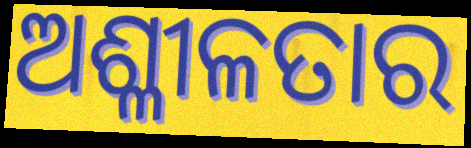
ଅଶ୍ଳୀଳତାର